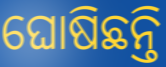
ଘୋଷିଛନ୍ତି